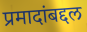
प्रमादांबद्दल